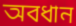
অবধান